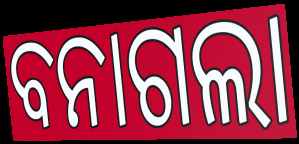
ବନାଗଲା